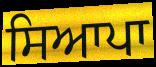
ਸਿਆਪਾ